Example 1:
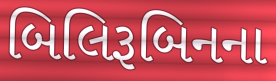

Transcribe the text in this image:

બિલિરૂબિનના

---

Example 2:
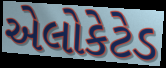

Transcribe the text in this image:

એલોકેટેડ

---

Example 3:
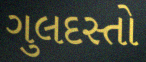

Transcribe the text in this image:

ગુલદસ્તો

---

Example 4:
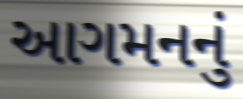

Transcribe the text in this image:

આગમનનું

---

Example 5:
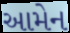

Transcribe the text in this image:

આમેન